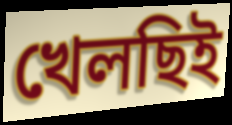
খেলছিই